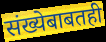
संख्येबाबतही